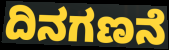
ದಿನಗಣನೆ